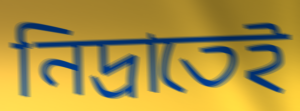
নিদ্রাতেই